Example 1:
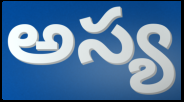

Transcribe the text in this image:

అస్య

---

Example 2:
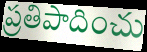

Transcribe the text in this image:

ప్రతిపాదించు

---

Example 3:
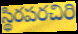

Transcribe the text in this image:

స్థిరపరచిరి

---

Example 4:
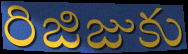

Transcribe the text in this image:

రిజిజుకు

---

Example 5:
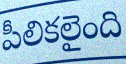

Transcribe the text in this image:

పీలికలైంది